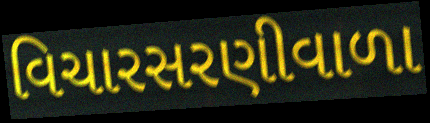
વિચારસરણીવાળા